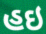
હઇ